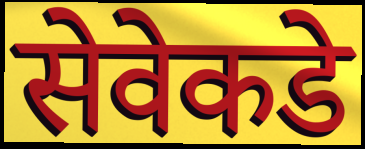
सेवेकडे